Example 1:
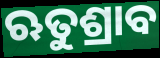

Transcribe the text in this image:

ଋତୁଶ୍ରାବ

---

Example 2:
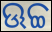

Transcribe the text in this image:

ଊଚ୍ଚ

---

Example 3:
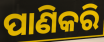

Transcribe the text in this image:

ପାଣିକରି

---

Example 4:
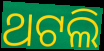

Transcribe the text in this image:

ଥଟଲି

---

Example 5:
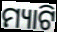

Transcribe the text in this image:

ମ୍ୟାଟି